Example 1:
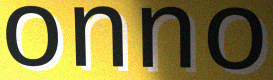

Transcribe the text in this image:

onno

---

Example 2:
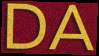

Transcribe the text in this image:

DA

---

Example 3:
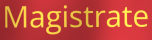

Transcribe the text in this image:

Magistrate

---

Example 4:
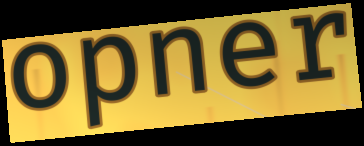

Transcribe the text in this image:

opner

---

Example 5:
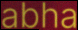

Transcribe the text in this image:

abha